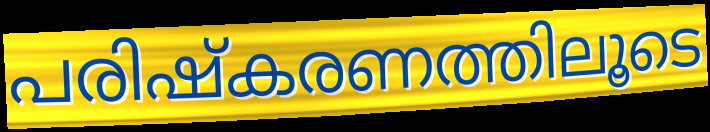
പരിഷ്കരണത്തിലൂടെ